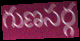
గుణసర్గ